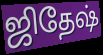
ஜிதேஷ்